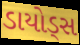
ડાયોડ્સ